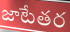
జాటేతర